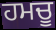
ਹਮਚੂ